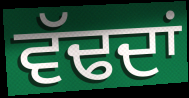
ਵੱਢਦਾਂ